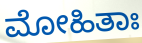
ಮೋಹಿತಾಃ